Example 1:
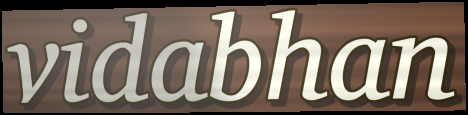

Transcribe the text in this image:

vidabhan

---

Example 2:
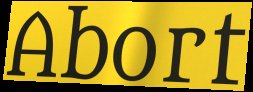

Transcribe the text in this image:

Abort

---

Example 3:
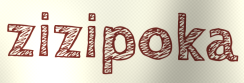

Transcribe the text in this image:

zizipoka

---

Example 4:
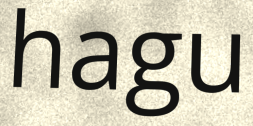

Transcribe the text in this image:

hagu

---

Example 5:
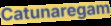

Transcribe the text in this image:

Catunaregam